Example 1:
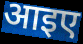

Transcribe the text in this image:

आइए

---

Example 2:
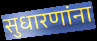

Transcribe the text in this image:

सुधारणांना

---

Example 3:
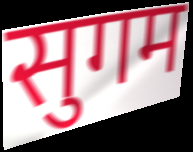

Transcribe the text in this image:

सुगम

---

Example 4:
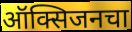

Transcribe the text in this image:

ऑक्सिजनचा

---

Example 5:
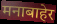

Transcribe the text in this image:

मनाबाहेर